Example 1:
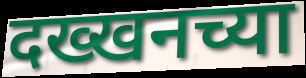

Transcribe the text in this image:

दख्खनच्या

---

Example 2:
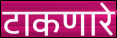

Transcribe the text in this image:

टाकणारे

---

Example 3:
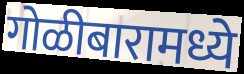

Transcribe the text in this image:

गोळीबारामध्ये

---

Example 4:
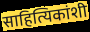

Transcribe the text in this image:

साहित्यिकांशी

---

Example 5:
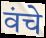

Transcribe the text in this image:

वंचे